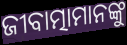
ଜୀବାତ୍ମାମାନଙ୍କୁ